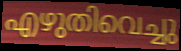
എഴുതിവെച്ചു